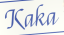
Kaka